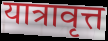
यात्रावृत्त